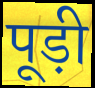
पूड़ी